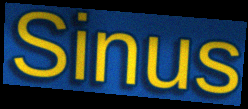
Sinus